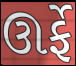
ઊર્ફે